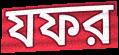
যফর